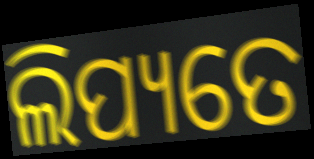
ଲିପ୍ୟତେ